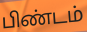
பிண்டம்